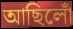
আছিলোঁ